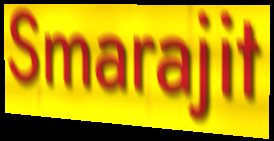
Smarajit